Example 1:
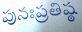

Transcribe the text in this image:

పునఃప్రతిష్ఠ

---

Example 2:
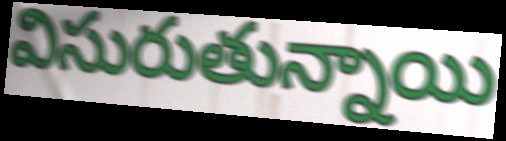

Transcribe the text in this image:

విసురుతున్నాయి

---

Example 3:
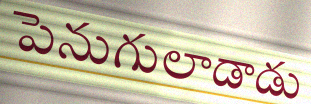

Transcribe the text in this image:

పెనుగులాడాడు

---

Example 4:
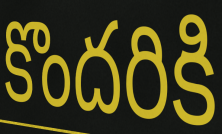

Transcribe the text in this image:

కొందరికి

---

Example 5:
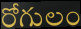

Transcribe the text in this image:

రోగులం